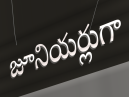
జూనియర్లుగా